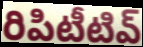
రిపిటీటివ్